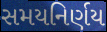
સમયનિર્ણય